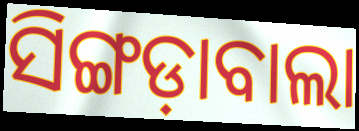
ସିଙ୍ଗଡ଼ାବାଲା